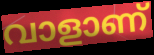
വാളാണ്